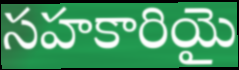
సహకారియై